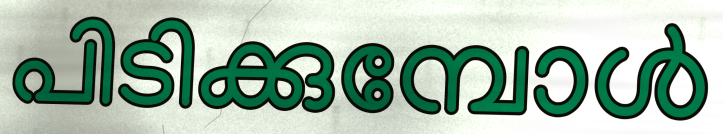
പിടിക്കുമ്പോൾ